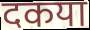
दकया